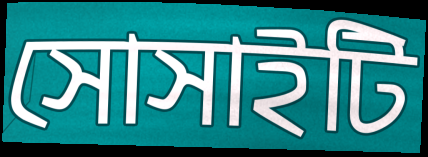
সোসাইটি